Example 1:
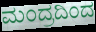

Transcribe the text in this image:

ಮಂದ್ರದಿಂದ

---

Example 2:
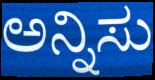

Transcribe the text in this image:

ಅನ್ನಿಸು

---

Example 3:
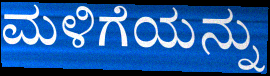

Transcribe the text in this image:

ಮಳಿಗೆಯನ್ನು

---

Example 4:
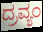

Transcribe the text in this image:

ದ್ರವ್ಯಂ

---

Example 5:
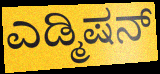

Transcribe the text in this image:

ಎಡ್ಮಿಷನ್